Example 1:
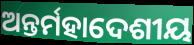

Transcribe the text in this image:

ଅନ୍ତର୍ମହାଦେଶୀୟ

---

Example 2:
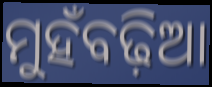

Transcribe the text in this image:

ମୁହଁବଢ଼ିଆ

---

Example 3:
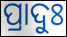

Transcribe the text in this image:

ପ୍ରାଦୁଃ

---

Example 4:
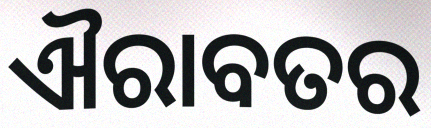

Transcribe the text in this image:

ଐରାବତର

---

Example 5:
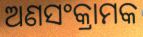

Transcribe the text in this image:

ଅଣସଂକ୍ରାମକ